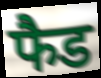
फैड